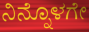
ನಿನ್ನೊಳಗೇ